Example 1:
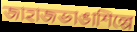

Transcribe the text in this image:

জাহাজভাঙাশিল্পে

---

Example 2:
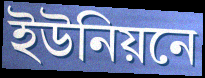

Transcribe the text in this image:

ইউনিয়নে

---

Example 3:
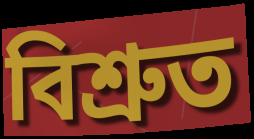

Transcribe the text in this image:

বিশ্রুত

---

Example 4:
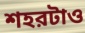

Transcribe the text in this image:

শহরটাও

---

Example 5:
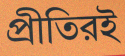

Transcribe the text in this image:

প্রীতিরই